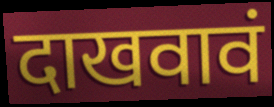
दाखवावं